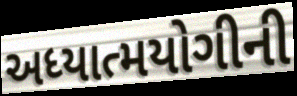
અધ્યાત્મયોગીની